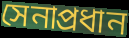
সেনাপ্রধান